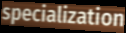
specialization